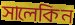
সালেকিন